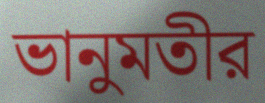
ভানুমতীর